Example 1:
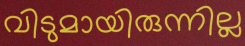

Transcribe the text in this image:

വിടുമായിരുന്നില്ല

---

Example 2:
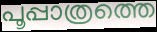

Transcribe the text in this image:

പൂപ്പാത്രത്തെ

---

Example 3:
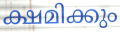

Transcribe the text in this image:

ക്ഷമിക്കും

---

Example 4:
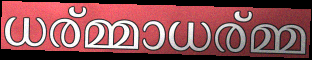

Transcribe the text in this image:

ധര്മ്മാധര്മ്മ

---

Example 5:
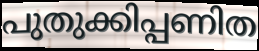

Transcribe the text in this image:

പുതുക്കിപ്പണിത